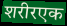
शरीरएक